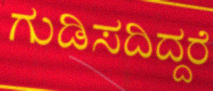
ಗುಡಿಸದಿದ್ದರೆ